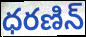
ధరణిన్